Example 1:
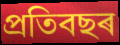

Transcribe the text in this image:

প্ৰতিবছৰ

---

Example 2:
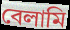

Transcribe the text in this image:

বেলামি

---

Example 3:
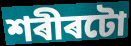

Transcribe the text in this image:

শৰীৰটো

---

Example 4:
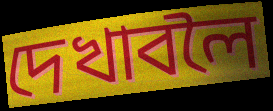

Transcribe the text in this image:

দেখাবলৈ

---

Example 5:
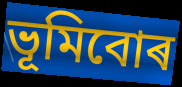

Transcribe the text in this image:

ভূমিবোৰ